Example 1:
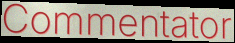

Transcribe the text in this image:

Commentator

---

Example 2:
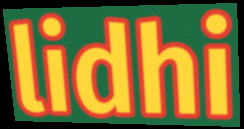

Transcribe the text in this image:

lidhi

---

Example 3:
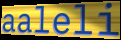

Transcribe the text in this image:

aaleli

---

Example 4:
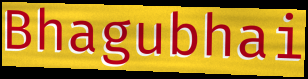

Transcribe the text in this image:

Bhagubhai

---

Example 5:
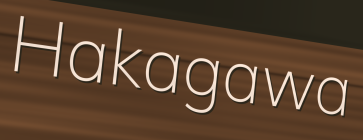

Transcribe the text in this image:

Hakagawa